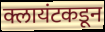
क्लायंटकडून